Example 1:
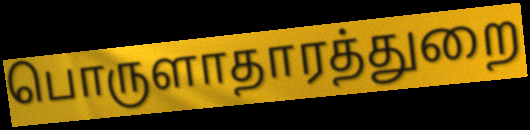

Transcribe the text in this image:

பொருளாதாரத்துறை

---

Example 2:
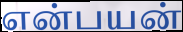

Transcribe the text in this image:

என்பயன்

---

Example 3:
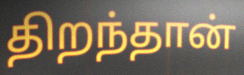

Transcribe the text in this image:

திறந்தான்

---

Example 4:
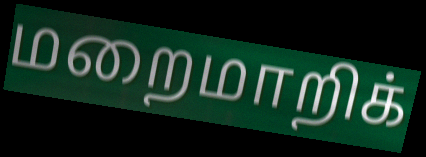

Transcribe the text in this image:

மறைமாறிக்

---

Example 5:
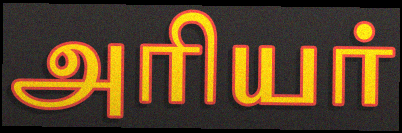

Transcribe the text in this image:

அரியர்